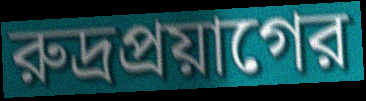
রুদ্রপ্রয়াগের